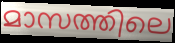
മാസത്തിലെ